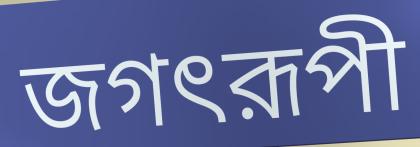
জগৎরূপী